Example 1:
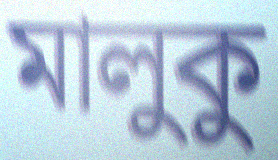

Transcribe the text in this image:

মালুকু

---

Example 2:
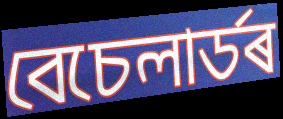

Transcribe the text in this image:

বেচেলাৰ্ডৰ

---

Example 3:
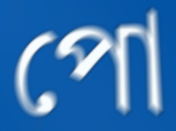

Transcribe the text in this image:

পো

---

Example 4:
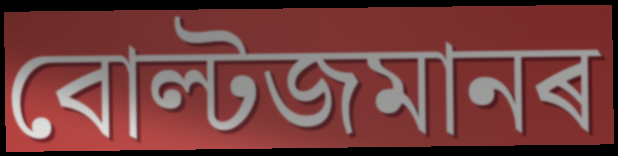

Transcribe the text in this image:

বোল্টজমানৰ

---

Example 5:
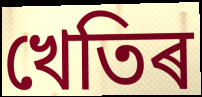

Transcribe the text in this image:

খেতিৰ